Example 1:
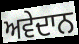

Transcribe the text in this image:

ਅਵੇਦਾਨ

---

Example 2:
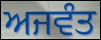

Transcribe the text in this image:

ਅਜਵੰਤ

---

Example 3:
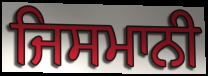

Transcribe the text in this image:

ਜਿਸਮਾਨੀ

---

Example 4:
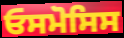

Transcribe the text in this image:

ਓਸਮੋਸਿਸ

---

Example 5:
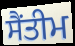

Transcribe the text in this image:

ਸੈਂਤੀਮ